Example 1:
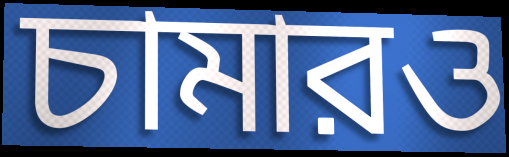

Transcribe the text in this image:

চামারও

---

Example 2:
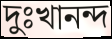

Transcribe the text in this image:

দুঃখানন্দ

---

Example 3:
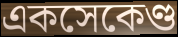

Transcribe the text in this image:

একসেকেণ্ড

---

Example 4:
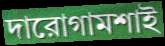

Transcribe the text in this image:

দারোগামশাই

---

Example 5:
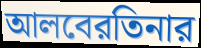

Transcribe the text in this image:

আলবেরতিনার